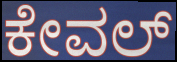
ಕೇವಲ್